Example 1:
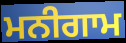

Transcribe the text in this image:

ਮਨੀਗਾਮ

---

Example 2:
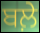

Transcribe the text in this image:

ਬਲ਼ੇ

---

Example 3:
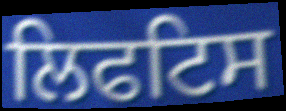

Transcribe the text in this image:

ਲਿਫਟਿਸ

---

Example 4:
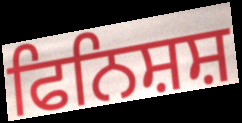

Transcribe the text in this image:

ਫਿਨਿਸ਼ਸ਼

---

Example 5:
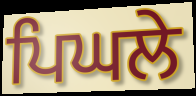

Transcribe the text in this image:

ਪਿਘਲੇ